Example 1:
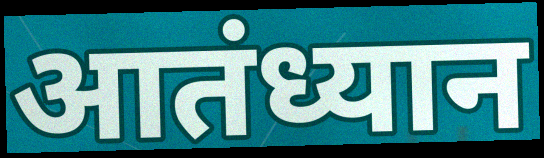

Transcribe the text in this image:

आतंध्यान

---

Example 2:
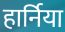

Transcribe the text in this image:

हार्निया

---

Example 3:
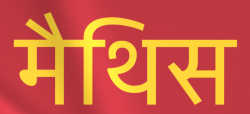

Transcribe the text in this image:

मैथिस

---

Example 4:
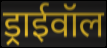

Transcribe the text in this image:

ड्राईवॉल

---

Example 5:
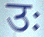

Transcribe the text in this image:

उः